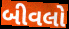
બીવલો